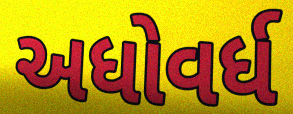
અધોવર્ધ